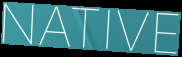
NATIVE